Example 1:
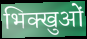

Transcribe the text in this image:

भिक्खुओं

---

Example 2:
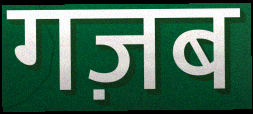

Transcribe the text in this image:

गज़ब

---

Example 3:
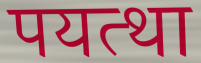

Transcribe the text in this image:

पयत्था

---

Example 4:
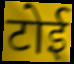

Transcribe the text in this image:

टोई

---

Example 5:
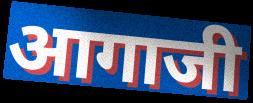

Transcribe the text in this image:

आगाजी